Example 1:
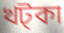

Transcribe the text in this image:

খট্‌কা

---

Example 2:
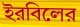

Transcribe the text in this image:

ইরবিলের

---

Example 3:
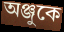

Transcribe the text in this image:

অঞ্জুকে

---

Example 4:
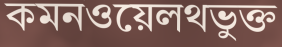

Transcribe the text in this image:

কমনওয়েলথভুক্ত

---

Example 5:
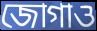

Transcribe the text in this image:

জোগাও